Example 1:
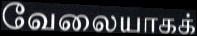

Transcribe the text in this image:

வேலையாகக்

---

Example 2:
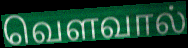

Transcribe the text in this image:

வெளவால்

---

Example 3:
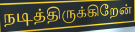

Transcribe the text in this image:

நடித்திருக்கிறேன்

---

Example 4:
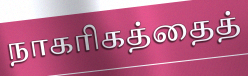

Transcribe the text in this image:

நாகரிகத்தைத்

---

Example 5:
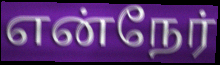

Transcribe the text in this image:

என்நேர்